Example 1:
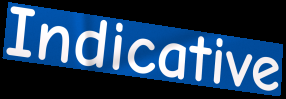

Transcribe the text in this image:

Indicative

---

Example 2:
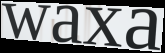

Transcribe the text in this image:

waxa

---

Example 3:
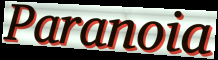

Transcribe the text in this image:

Paranoia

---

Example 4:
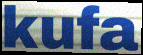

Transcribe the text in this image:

kufa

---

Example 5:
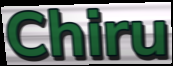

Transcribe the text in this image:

Chiru